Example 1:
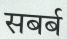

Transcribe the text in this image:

सबर्ब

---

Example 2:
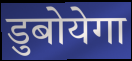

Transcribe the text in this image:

डुबोयेगा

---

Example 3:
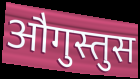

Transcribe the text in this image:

औगुस्तुस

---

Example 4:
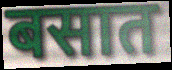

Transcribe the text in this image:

बसात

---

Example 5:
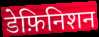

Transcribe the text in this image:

डेफ़िनिशन